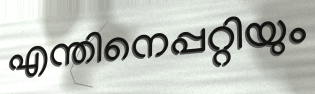
എന്തിനെപ്പറ്റിയും